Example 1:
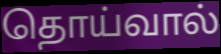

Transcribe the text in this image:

தொய்வால்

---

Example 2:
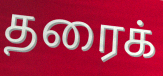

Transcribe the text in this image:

தரைக்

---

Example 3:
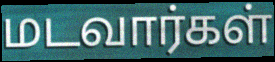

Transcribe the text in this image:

மடவார்கள்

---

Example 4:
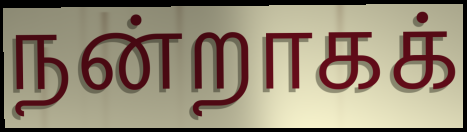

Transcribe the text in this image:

நன்றாகக்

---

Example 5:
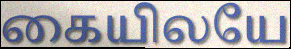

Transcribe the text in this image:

கையிலயே